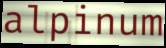
alpinum